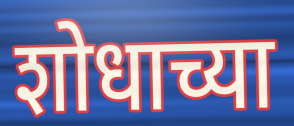
शोधाच्या